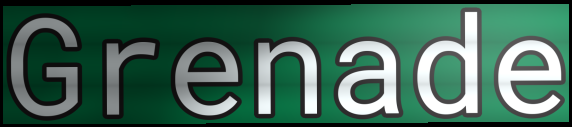
Grenade